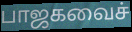
பாஜகவைச்